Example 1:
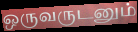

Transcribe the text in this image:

ஒருவருடனும்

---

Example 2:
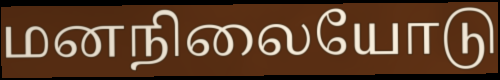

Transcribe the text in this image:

மனநிலையோடு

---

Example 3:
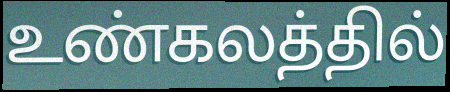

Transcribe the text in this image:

உண்கலத்தில்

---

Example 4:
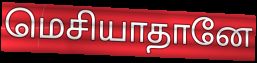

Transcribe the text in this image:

மெசியாதானே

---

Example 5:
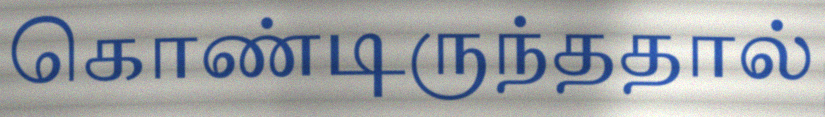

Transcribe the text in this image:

கொண்டிருந்ததால்